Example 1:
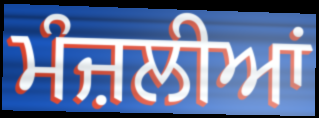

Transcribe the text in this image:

ਮੰਜ਼ਲੀਆਂ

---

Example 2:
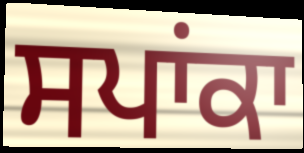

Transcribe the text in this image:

ਸਪਾਂਕਾ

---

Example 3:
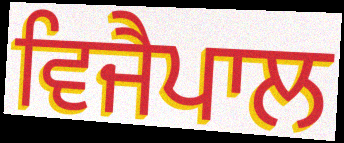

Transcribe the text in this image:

ਵਿਜੈਪਾਲ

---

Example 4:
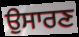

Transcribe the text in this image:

ਉਸਾਰਣ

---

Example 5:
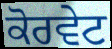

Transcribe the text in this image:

ਕੋਰਵੇਟ